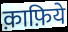
क़ाफ़िये